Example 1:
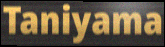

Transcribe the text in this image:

Taniyama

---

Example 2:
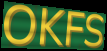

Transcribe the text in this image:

OKFS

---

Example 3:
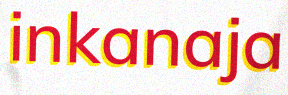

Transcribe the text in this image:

inkanaja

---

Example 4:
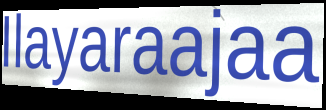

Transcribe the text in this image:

Ilayaraajaa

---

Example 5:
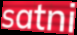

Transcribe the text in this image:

satni